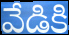
వేడికి